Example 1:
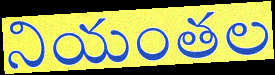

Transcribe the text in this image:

నియంతల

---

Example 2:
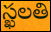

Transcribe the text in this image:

స్ఖలతి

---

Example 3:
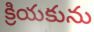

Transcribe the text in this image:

క్రియకును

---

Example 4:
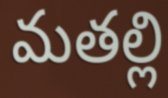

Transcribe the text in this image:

మతల్లి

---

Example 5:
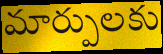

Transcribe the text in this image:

మార్పులకు